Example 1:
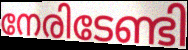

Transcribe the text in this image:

നേരിടേണ്ടി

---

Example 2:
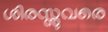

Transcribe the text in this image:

ശിരസ്സുവരെ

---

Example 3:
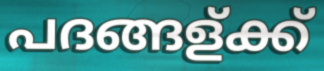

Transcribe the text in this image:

പദങ്ങള്ക്ക്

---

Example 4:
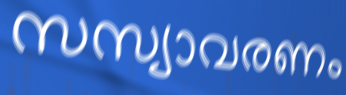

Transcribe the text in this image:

സസ്യാവരണം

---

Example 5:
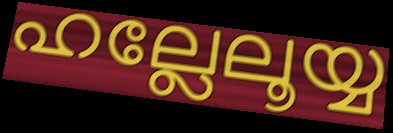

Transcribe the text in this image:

ഹല്ലേലൂയ്യ